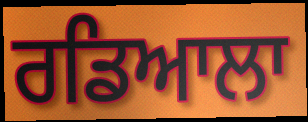
ਰਡਿਆਲਾ